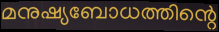
മനുഷ്യബോധത്തിന്റെ